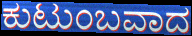
ಕುಟುಂಬವಾದ